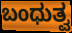
ಬಂಧುತ್ವ